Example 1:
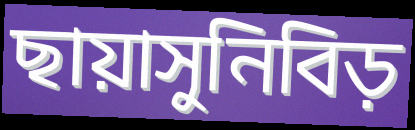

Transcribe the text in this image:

ছায়াসুনিবিড়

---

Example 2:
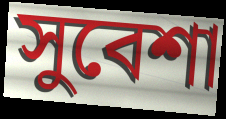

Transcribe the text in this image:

সুবেশা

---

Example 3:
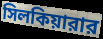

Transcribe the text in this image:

সিলকিয়ারার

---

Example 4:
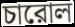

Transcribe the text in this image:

চারোল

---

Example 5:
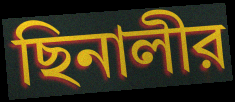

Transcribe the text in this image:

ছিনালীর